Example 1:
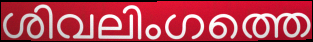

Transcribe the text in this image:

ശിവലിംഗത്തെ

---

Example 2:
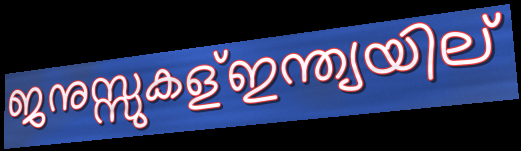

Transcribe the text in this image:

ജനുസ്സുകള്ഇന്ത്യയില്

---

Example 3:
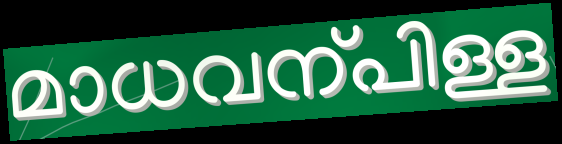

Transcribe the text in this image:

മാധവന്പിള്ള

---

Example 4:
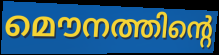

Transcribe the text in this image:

മൌനത്തിന്റെ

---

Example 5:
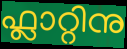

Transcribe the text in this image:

ഫ്ലാറ്റിനു